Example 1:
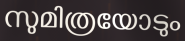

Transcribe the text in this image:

സുമിത്രയോടും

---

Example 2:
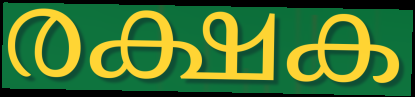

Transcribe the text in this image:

രക്ഷക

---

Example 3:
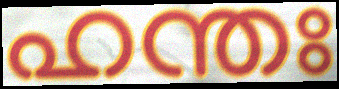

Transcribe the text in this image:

ഹന്തഃ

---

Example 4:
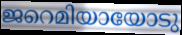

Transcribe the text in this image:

ജറെമിയായോടു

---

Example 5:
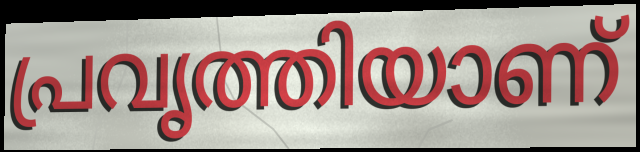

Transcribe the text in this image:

പ്രവൃത്തിയാണ്